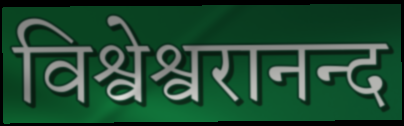
विश्वेश्वरानन्द